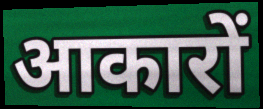
आकारों